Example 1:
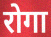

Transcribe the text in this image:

रोगा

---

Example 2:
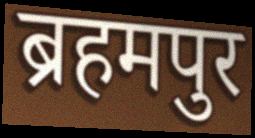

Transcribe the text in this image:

ब्रहमपुर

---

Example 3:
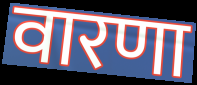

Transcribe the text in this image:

वारणा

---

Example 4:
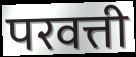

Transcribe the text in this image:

परवत्ती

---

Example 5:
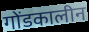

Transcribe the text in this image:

गोंडकालीन